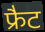
फ्रैट